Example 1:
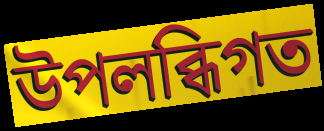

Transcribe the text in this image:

উপলব্ধিগত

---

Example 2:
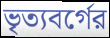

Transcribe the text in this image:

ভৃত্যবর্গের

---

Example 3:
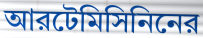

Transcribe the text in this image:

আরটেমিসিনিনের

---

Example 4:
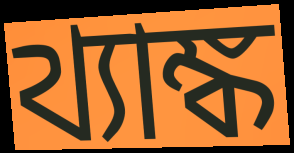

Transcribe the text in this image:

থ্যাঙ্ক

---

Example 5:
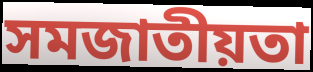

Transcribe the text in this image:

সমজাতীয়তা